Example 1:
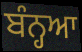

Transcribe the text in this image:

ਬੰਨ੍ਹਆ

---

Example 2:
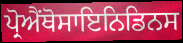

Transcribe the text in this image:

ਪ੍ਰੋਐਂਥੋਸਾਇਨਿਡਿਨਸ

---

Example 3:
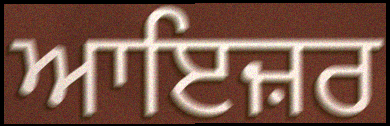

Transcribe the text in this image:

ਆਇਜ਼ਰ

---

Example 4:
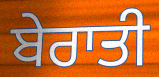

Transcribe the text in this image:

ਬੇਰਾਤੀ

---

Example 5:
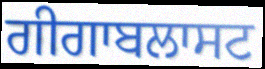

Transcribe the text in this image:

ਗੀਗਾਬਲਾਸਟ